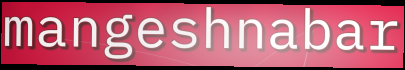
mangeshnabar